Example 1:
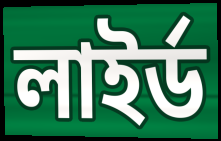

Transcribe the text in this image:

লাইর্ড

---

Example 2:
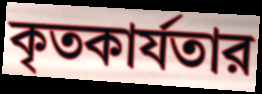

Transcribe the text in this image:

কৃতকার্যতার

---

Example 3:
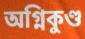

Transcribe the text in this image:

অগ্নিকুণ্ড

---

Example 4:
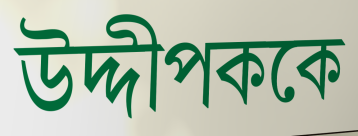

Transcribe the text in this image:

উদ্দীপককে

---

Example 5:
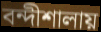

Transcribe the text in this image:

বন্দীশালায়